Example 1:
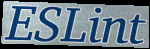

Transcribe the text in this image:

ESLint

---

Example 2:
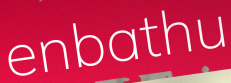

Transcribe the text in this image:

enbathu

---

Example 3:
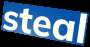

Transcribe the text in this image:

steal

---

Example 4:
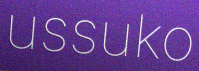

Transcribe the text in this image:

ussuko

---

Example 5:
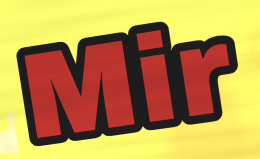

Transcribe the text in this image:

Mir